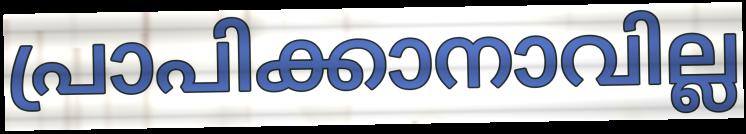
പ്രാപിക്കാനാവില്ല